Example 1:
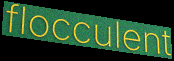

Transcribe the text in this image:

flocculent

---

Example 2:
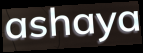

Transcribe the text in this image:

ashaya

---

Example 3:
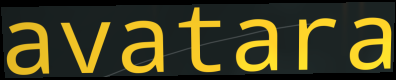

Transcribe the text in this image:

avatara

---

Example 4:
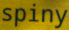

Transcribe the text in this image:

spiny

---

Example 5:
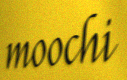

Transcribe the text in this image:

moochi